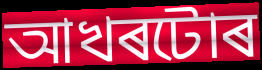
আখৰটোৰ